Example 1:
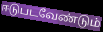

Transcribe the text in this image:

ஈடுபடவேண்டும்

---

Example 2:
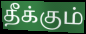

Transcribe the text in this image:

தீக்கும்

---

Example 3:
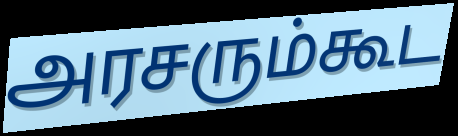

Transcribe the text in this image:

அரசரும்கூட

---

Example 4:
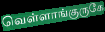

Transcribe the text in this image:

வெள்ளாங்குருகே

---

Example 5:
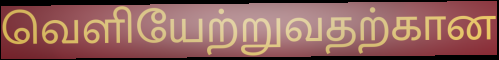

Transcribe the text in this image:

வெளியேற்றுவதற்கான